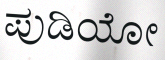
ಪುಡಿಯೋ